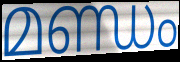
മണ്ഡം